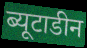
ब्यूटाडीन